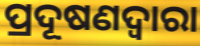
ପ୍ରଦୂଷଣଦ୍ବାରା